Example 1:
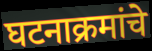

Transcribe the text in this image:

घटनाक्रमांचे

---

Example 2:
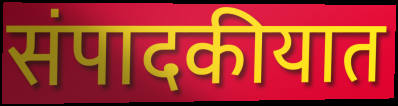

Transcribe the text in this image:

संपादकीयात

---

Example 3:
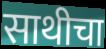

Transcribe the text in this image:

साथीचा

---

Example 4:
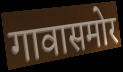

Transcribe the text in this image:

गावासमोर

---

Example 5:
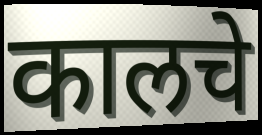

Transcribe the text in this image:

कालचे